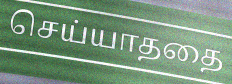
செய்யாததை